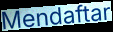
Mendaftar